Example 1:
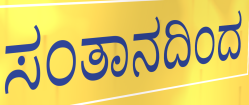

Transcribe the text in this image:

ಸಂತಾನದಿಂದ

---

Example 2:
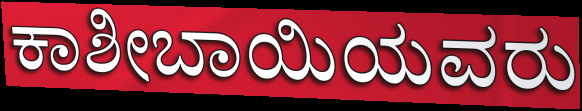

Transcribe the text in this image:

ಕಾಶೀಬಾಯಿಯವರು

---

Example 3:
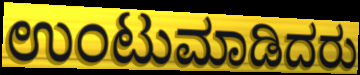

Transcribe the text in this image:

ಉಂಟುಮಾಡಿದರು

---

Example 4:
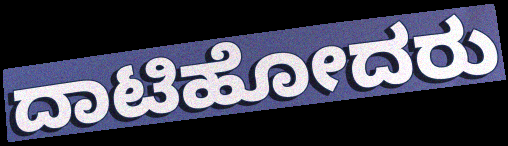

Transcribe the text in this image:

ದಾಟಿಹೋದರು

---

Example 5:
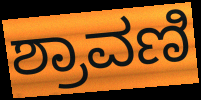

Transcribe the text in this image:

ಶ್ರಾವಣಿ